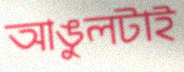
আঙুলটাই